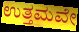
ಉತ್ತಮವೇ